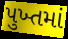
પુખ્તમાં